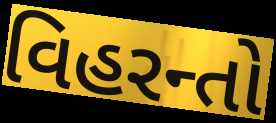
વિહરન્તો